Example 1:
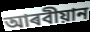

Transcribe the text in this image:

আৰবীয়ান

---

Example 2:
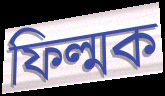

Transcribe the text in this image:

ফিল্মক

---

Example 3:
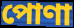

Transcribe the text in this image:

পোণা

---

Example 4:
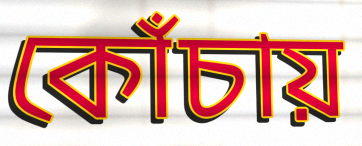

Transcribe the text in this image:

কোঁচায়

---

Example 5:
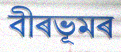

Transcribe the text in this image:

বীৰভূমৰ